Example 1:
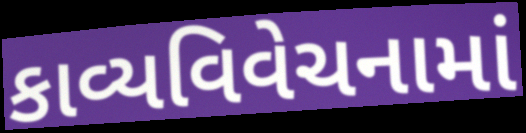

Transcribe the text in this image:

કાવ્યવિવેચનામાં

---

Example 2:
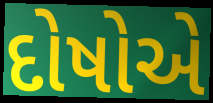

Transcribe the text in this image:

દોષોએ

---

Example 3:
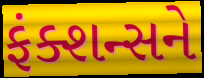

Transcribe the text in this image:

ફંક્શન્સને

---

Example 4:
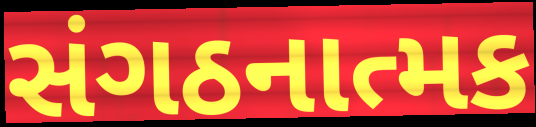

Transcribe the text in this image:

સંગઠનાત્મક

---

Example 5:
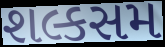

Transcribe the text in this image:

શલ્કસમ